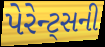
પેરેન્ટ્સની